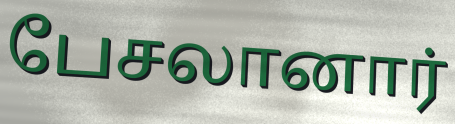
பேசலானார்